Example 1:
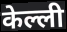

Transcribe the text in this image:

केल्ली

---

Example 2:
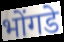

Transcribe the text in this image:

भोंगडे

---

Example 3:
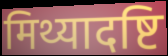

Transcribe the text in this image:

मिथ्यादष्टि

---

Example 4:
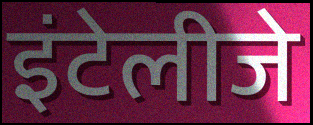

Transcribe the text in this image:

इंटेलीजे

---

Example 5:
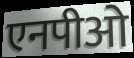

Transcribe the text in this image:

एनपीओ